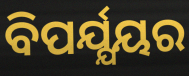
ବିପର୍ଯ୍ଯୟର